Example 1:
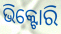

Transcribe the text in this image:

ଭିକ୍ଟୋରି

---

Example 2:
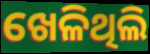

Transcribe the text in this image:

ଖେଳିଥିଲି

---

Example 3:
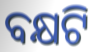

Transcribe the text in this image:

ବକ୍ଷଟି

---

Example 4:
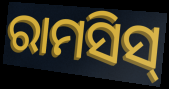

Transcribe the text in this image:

ରାମସିସ୍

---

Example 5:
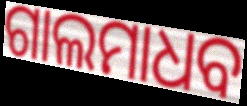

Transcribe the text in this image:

ଗାଲମାଧବ